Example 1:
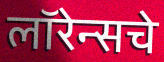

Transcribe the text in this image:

लॉरेन्सचे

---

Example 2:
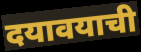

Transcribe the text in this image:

दयावयाची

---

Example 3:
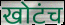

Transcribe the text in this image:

खोटंच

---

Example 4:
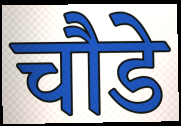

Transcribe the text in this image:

चौडे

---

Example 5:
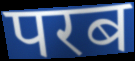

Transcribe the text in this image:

परब